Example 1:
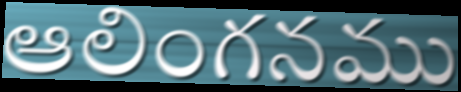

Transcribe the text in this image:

ఆలింగనము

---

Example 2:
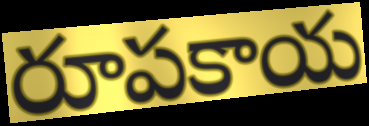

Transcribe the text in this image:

రూపకాయ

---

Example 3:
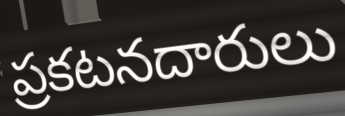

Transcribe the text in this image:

ప్రకటనదారులు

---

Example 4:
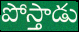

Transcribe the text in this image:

పోస్తాడు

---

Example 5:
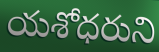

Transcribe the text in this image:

యశోధరుని